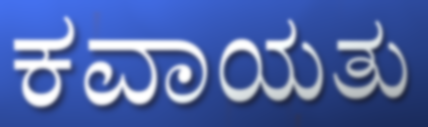
ಕವಾಯತು